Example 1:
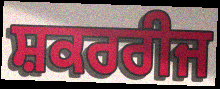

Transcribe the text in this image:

ਸ਼ਕਰਰੀਜ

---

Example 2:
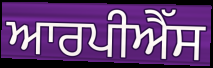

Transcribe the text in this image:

ਆਰਪੀਐੱਸ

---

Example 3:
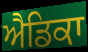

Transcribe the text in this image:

ਐਡਿਕਾ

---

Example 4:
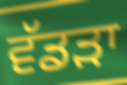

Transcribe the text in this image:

ਵੱਡਡ਼ਾ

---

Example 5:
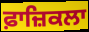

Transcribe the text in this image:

ਫ਼ਾਜ਼ਿਕਲਾ